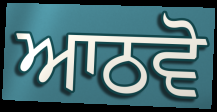
ਆਠਵੋ